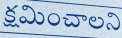
క్షమించాలని